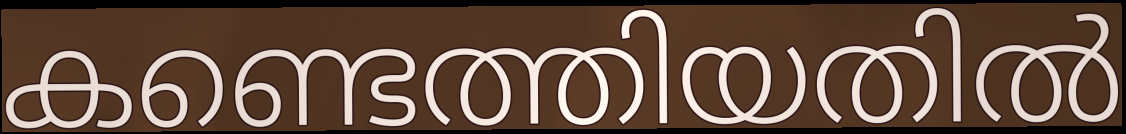
കണ്ടെത്തിയതിൽ